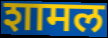
शामल